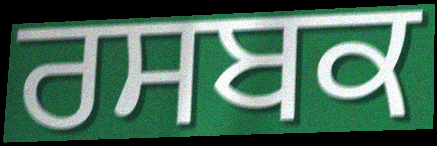
ਰਸਬਕ